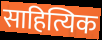
साहित्यिक